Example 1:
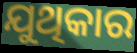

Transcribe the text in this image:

ଯୁଥିକାର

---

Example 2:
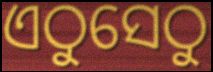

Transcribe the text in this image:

ଏଠୁସେଠୁ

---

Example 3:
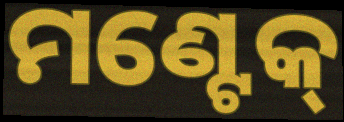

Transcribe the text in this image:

ମଣ୍ଟେକ୍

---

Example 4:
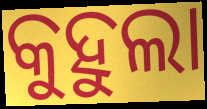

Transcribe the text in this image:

କୁହୁଲା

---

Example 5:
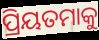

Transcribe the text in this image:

ପ୍ରିୟତମାକୁ